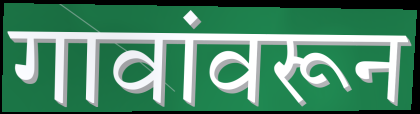
गावांवरून